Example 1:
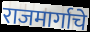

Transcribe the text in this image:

राजमार्गाचे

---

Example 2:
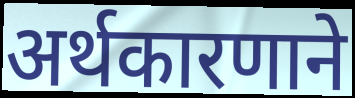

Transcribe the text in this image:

अर्थकारणाने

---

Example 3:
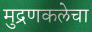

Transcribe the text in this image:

मुद्रणकलेचा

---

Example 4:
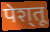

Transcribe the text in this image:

पेश्तू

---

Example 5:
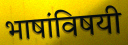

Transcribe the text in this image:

भाषांविषयी